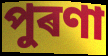
পুৰণা